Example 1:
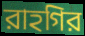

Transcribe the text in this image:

রাহগির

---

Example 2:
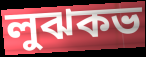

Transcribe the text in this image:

লুঝকভ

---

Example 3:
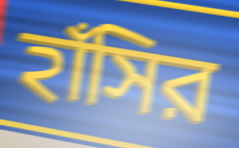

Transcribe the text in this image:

হাঁসির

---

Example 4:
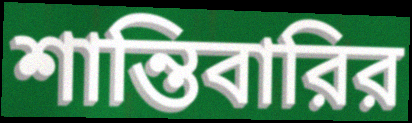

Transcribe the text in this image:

শান্তিবারির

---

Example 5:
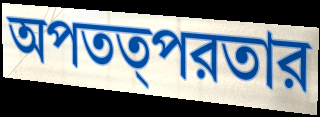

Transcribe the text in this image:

অপতত্পরতার